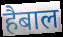
हैबाल